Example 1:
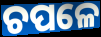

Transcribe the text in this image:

ଚପଳେ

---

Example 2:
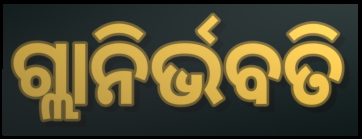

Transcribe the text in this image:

ଗ୍ଲାନିର୍ଭବତି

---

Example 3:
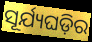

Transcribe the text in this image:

ସୂର୍ଯ୍ୟଘଡ଼ିର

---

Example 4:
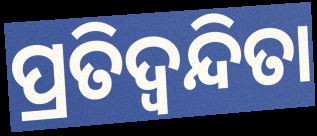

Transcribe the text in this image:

ପ୍ରତିଦ୍ଵନ୍ଦିତା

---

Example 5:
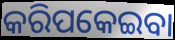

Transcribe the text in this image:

କରିପକେଇବା